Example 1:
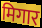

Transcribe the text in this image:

मिगार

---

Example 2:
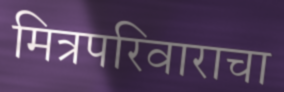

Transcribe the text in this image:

मित्रपरिवाराचा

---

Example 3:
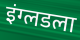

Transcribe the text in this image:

इंग्लडला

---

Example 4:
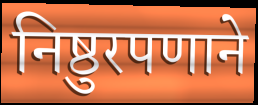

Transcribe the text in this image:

निष्ठुरपणाने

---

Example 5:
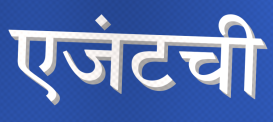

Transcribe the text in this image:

एजंटची